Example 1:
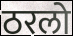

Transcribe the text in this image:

ठरलो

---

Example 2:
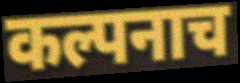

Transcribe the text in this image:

कल्पनाच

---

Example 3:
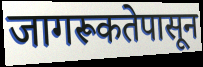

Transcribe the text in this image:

जागरूकतेपासून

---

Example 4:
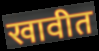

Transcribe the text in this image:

खावीत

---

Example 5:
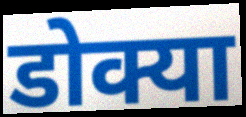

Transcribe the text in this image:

डोक्या